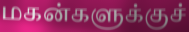
மகன்களுக்குச்